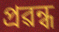
প্ৰৱন্ধ